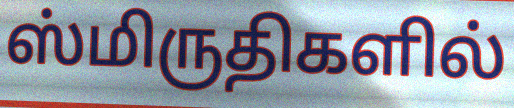
ஸ்மிருதிகளில்